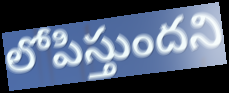
లోపిస్తుందని